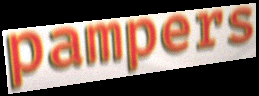
pampers